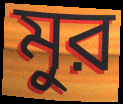
মুর